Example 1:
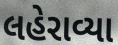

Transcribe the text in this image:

લહેરાવ્યા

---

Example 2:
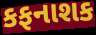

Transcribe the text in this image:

કફનાશક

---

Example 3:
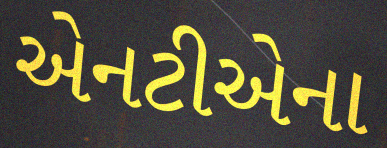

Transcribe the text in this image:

એનટીએના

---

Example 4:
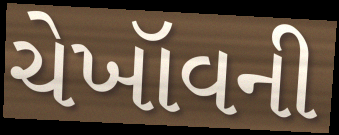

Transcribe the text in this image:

ચેખૉવની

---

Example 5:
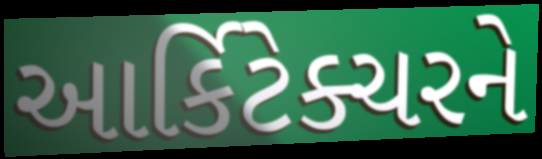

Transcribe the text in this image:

આર્કિટેક્ચરને